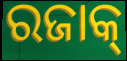
ରଜାକ୍